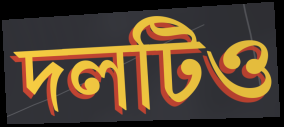
দলটিও